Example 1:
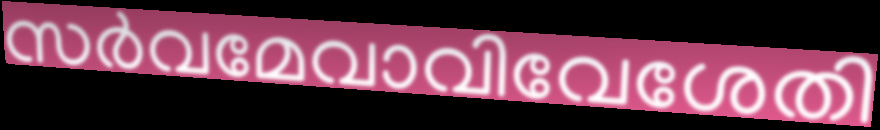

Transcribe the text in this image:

സർവമേവാവിവേശേതി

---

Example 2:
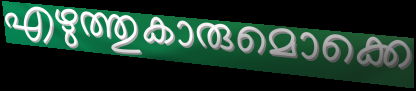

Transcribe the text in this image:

എഴുത്തുകാരുമൊക്കെ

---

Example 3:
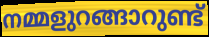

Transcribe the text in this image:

നമ്മളുറങ്ങാറുണ്ട്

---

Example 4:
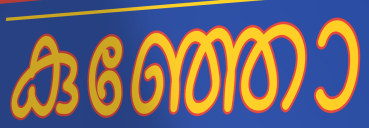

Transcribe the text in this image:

കുഞ്ഞോ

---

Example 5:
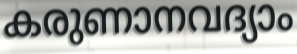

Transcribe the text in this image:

കരുണാനവദ്യാം